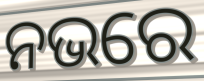
ନଭରେ